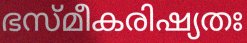
ഭസ്മീകരിഷ്യതഃ